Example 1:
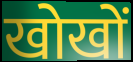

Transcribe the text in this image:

खोखों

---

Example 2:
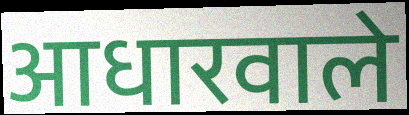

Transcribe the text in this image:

आधारवाले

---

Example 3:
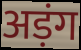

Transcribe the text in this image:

अड़ंग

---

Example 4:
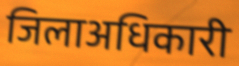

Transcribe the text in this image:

जिलाअधिकारी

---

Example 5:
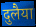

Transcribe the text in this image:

दुलैया